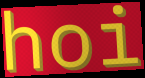
hoi